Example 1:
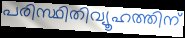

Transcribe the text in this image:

പരിസ്ഥിതിവ്യൂഹത്തിന്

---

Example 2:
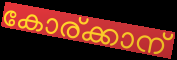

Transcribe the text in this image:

കോര്ക്കാന്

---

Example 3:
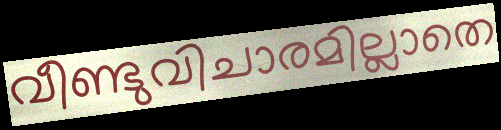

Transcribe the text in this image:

വീണ്ടുവിചാരമില്ലാതെ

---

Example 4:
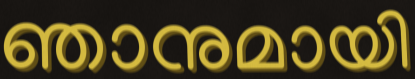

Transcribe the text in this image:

ഞാനുമായി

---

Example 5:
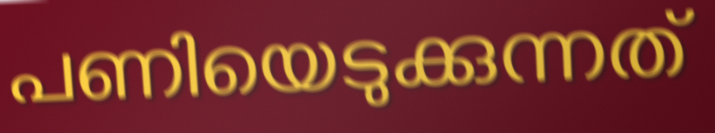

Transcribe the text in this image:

പണിയെടുക്കുന്നത്